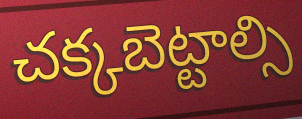
చక్కబెట్టాల్సి